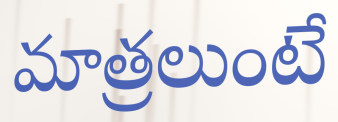
మాత్రలుంటే